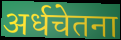
अर्धचेतना